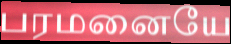
பரமனையே